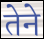
तेने